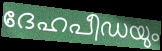
ദേഹപീഡയും